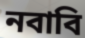
নবাবি